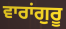
ਵਾਰਾਂਗੁਰੂ